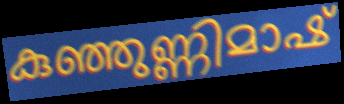
കുഞ്ഞുണ്ണിമാഷ്